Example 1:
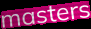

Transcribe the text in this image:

masters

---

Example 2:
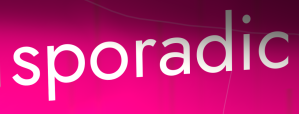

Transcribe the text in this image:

sporadic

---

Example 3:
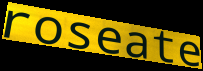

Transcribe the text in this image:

roseate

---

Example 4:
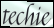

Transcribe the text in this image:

techie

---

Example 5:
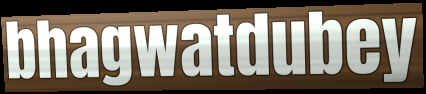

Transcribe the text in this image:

bhagwatdubey